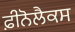
ਫ਼ੀਨੋਲੈਕਸ